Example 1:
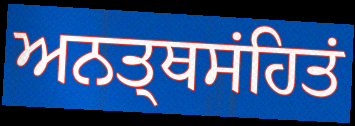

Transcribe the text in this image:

ਅਨਤ੍ਥਸਂਹਿਤਂ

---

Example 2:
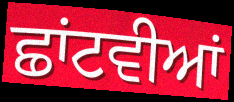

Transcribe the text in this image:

ਛਾਂਟਵੀਆਂ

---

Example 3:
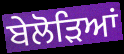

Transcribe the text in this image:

ਬੇਲੋੜਿਆਂ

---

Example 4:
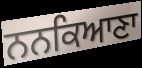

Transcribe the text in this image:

ਨਨਕਿਆਣਾ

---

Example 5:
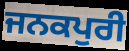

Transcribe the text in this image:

ਜਨਕਪੁਰੀ